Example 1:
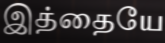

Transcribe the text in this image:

இத்தையே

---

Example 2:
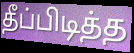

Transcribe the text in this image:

தீப்பிடித்த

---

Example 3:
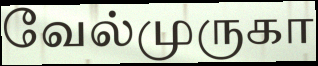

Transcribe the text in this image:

வேல்முருகா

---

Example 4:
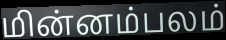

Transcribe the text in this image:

மின்னம்பலம்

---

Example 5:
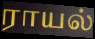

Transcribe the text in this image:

ராயல்